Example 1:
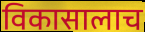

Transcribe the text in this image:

विकासालाच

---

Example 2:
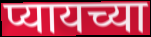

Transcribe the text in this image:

प्यायच्या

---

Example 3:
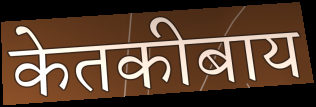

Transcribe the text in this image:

केतकीबाय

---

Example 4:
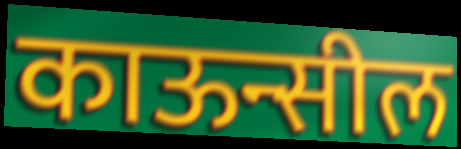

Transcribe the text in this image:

काऊन्सील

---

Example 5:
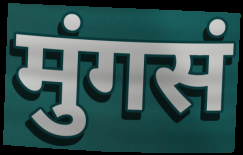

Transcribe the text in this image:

मुंगसं